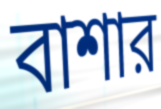
বাশার